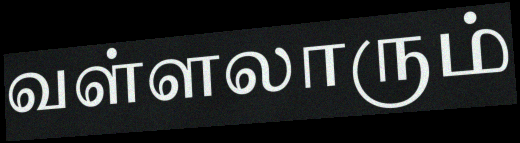
வள்ளலாரும்